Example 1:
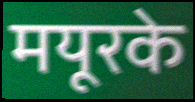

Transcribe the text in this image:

मयूरके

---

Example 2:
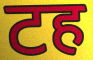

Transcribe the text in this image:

टह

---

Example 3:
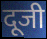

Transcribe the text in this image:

दूजी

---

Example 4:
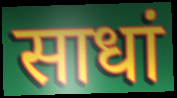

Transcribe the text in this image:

साधां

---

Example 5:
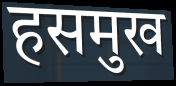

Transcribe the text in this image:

हसमुख